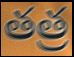
తత్ర